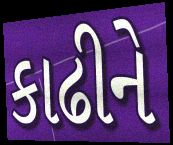
કાઢીને